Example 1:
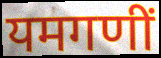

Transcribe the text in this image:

यमगणीं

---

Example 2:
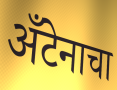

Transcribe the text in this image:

अँटेनाचा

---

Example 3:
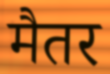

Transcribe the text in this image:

मैतर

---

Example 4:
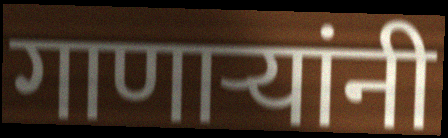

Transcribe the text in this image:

गाणाऱ्यांनी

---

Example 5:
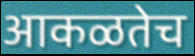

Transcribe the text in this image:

आकळतेच